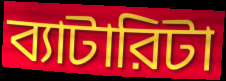
ব্যাটারিটা